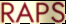
RAPS